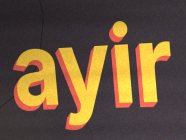
ayir